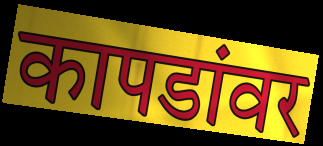
कापडांवर